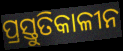
ପ୍ରସ୍ତୁତିକାଳୀନ